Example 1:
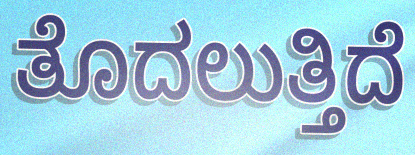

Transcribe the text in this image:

ತೊದಲುತ್ತಿದೆ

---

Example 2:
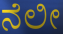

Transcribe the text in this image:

ನೆಲೀ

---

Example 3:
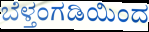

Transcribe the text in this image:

ಬೆಳ್ತಂಗಡಿಯಿಂದ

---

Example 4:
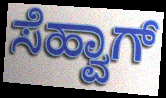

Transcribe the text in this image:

ಸೆಹ್ವಾಗ್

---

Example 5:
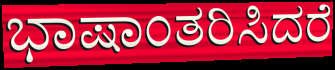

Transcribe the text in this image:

ಭಾಷಾಂತರಿಸಿದರೆ